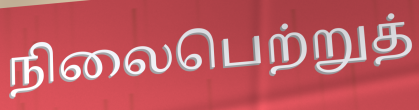
நிலைபெற்றுத்